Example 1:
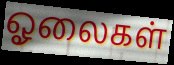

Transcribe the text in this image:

ஓலைகள்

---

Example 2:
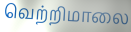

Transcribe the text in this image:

வெற்றிமாலை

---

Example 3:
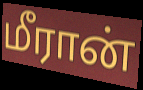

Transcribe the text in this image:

மீரான்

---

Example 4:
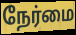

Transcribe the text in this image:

நேர்மை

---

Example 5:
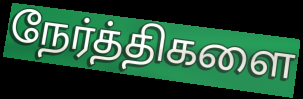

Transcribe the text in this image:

நேர்த்திகளை